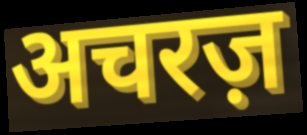
अचरज़